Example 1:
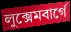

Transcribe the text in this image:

লুক্সেমবার্গে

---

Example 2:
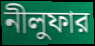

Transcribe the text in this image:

নীলুফার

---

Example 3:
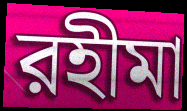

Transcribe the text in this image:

রহীমা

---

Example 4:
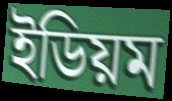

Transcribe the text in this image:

ইডিয়ম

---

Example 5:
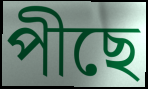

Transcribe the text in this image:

পীছে